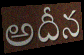
అదీన